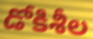
డోకిశీల